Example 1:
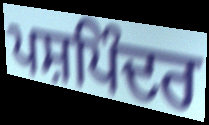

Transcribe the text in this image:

ਪਸ਼ਪਿੰਦਰ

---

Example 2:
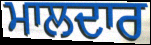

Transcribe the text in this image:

ਮਾਲਦਾਰ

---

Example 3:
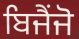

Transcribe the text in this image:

ਬਿਜੈਂਜੋ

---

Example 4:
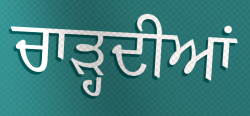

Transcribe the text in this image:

ਚਾੜ੍ਹਦੀਆਂ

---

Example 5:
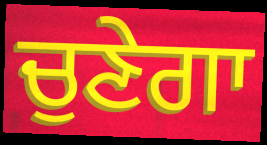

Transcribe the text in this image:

ਚੁਣੇਗਾ